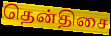
தென்திசை